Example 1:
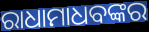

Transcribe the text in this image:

ରାଧାମାଧବଙ୍କର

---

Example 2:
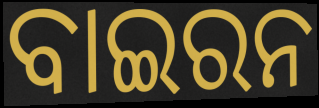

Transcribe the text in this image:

ବାଇରନ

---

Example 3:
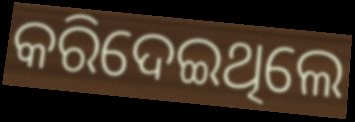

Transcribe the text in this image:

କରିଦେଇଥିଲେ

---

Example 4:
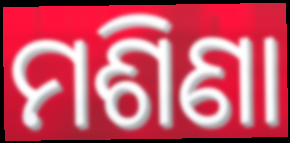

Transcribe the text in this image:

ମଶିଣା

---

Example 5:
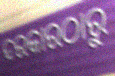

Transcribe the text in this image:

ଦରକାରଠାରୁ